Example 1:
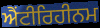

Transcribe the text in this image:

ਐਂਟੀਰਿਹੀਨਮ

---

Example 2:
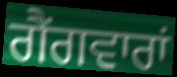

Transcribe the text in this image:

ਗੈਂਗਵਾਰਾਂ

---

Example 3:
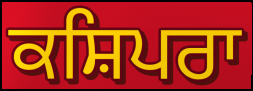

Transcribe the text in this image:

ਕਸ਼ਿਪਰਾ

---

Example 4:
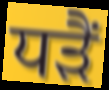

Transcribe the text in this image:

ਧੜੈਂ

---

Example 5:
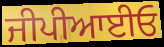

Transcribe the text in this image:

ਜੀਪੀਆਈਓ